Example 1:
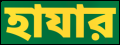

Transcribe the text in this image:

হাযার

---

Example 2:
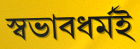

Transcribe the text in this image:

স্বভাবধর্মই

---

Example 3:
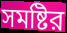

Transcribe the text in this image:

সমষ্টির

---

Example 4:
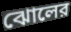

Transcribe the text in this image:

ঝোলের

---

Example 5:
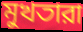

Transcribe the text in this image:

মুখতারা